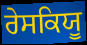
ਰੇਸਕਿਯੂ